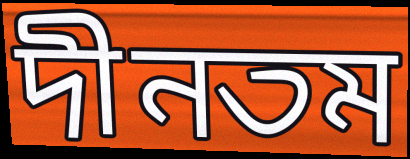
দীনতম